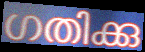
ഗതിക്കു